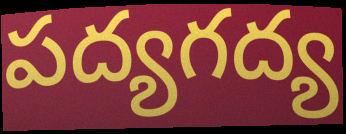
పద్యగద్య